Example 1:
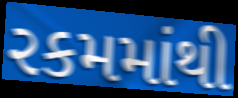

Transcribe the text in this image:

રકમમાંથી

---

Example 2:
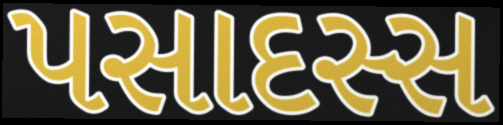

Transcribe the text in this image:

પસાદસ્સ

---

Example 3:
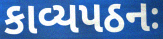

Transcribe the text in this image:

કાવ્યપઠનઃ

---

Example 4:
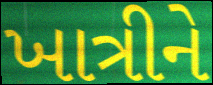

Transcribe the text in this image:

ખાત્રીને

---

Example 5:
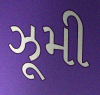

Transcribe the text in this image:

ઝૂમી